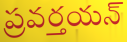
ప్రవర్తయన్